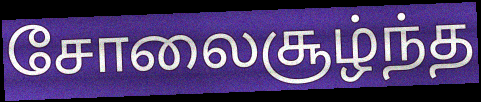
சோலைசூழ்ந்த